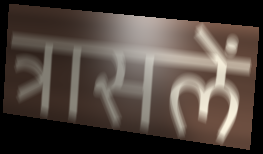
त्रासलें